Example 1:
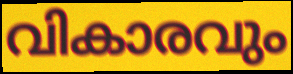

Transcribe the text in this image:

വികാരവും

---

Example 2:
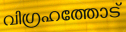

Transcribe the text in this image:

വിഗ്രഹത്തോട്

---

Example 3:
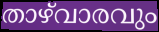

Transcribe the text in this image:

താഴ്‌വാരവും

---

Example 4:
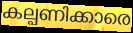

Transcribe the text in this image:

കല്പണിക്കാരെ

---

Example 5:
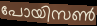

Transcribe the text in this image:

പോയിസൺ